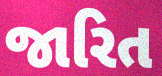
જારિત